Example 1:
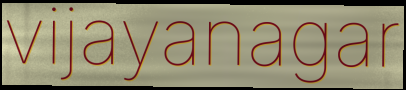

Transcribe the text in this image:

vijayanagar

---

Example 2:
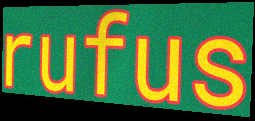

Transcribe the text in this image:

rufus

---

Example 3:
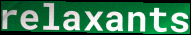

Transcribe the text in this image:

relaxants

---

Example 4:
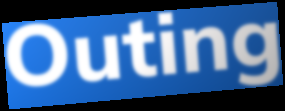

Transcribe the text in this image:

Outing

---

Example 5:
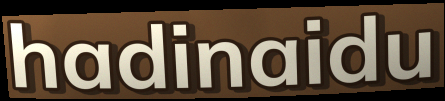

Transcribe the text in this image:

hadinaidu